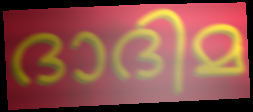
ദാദിമ